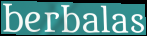
berbalas